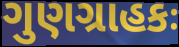
ગુણગ્રાહકઃ